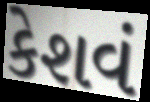
કેશવં